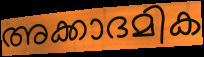
അക്കാദമിക